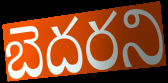
బెదరని